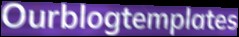
Ourblogtemplates